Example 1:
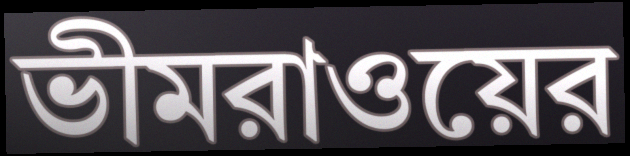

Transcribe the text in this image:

ভীমরাওয়ের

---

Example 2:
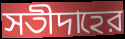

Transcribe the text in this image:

সতীদাহের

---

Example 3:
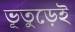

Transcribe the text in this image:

ভূতুড়েই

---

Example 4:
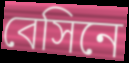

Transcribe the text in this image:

বেসিনে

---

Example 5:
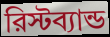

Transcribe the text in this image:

রিস্টব্যান্ড